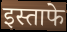
इस्ताफे